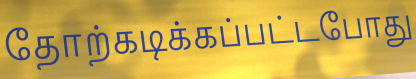
தோற்கடிக்கப்பட்டபோது